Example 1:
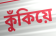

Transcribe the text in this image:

কুঁকিয়ে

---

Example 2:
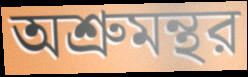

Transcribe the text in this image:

অশ্রুমন্থর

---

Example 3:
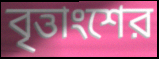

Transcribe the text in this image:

বৃত্তাংশের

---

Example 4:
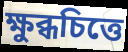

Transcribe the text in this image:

ক্ষুব্ধচিত্তে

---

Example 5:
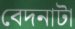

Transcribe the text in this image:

বেদনাটা